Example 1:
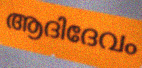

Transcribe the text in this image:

ആദിദേവം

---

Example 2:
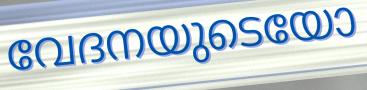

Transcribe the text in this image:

വേദനയുടെയോ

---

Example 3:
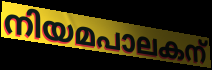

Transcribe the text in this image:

നിയമപാലകന്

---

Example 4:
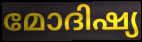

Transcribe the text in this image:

മോദിഷ്യ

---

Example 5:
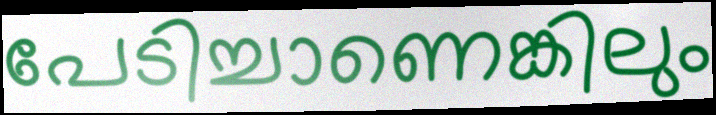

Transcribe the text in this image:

പേടിച്ചാണെങ്കിലും